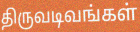
திருவடிவங்கள்